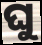
ଘୁ